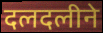
दलदलीने